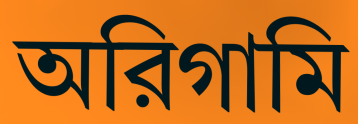
অরিগামি